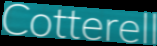
Cotterell